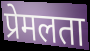
प्रेमलता